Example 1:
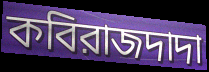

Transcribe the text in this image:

কবিরাজদাদা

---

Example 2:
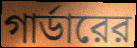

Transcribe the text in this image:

গার্ডারের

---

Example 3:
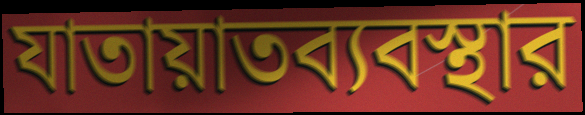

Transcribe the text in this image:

যাতায়াতব্যবস্থার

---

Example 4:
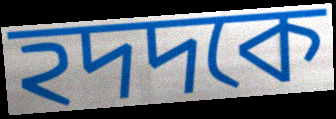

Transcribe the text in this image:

হদদকে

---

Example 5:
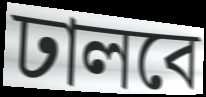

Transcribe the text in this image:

ঢালবে